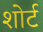
शोर्ट